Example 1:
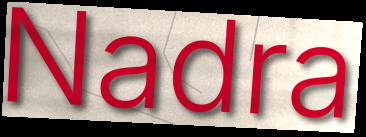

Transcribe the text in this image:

Nadra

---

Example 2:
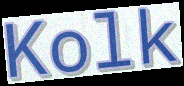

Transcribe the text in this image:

Kolk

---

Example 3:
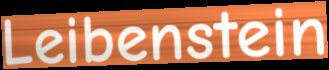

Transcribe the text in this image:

Leibenstein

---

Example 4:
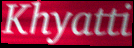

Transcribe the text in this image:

Khyatti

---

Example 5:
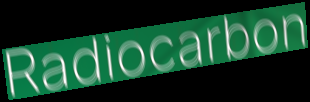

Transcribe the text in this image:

Radiocarbon